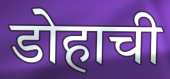
डोहाची